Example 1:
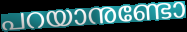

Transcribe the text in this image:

പറയാനുണ്ടോ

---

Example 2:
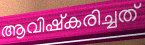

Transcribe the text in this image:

ആവിഷ്കരിച്ചത്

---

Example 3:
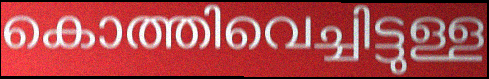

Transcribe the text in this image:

കൊത്തിവെച്ചിട്ടുള്ള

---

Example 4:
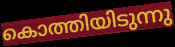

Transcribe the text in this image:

കൊത്തിയിടുന്നു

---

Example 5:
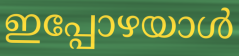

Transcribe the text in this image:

ഇപ്പോഴയാൾ